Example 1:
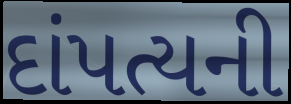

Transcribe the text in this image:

દાંપત્યની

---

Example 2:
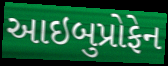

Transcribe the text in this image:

આઇબુપ્રોફેન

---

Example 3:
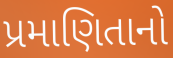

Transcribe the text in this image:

પ્રમાણિતાનો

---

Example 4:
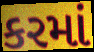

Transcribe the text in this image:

કરમાં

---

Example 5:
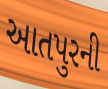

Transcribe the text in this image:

આતપુરની